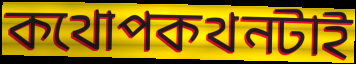
কথোপকথনটাই